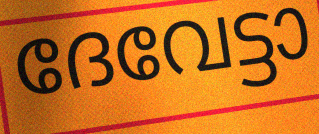
ദേവേട്ടാ